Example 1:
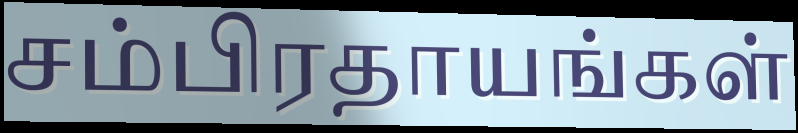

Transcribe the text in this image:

சம்பிரதாயங்கள்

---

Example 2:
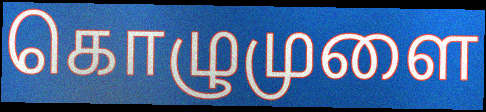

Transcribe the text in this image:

கொழுமுளை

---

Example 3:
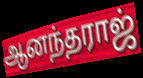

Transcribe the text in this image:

ஆனந்தராஜ்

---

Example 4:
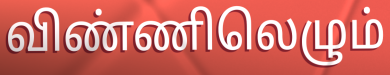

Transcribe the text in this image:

விண்ணிலெழும்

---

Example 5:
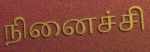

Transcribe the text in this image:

நினைச்சி